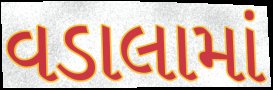
વડાલામાં